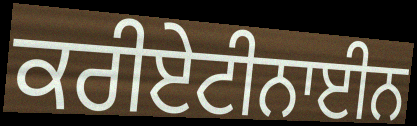
ਕਰੀਏਟੀਨਾਈਨ